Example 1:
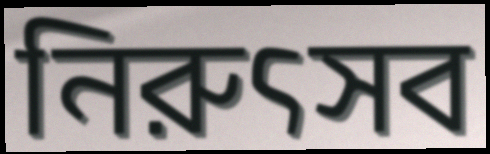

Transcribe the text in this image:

নিরুৎসব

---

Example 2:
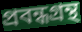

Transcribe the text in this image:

প্রবন্ধগ্রন্থ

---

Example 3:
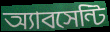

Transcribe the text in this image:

অ্যাবসেন্টি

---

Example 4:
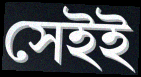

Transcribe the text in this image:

সেইই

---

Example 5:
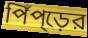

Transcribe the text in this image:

পিঁপ্‌ড়ের